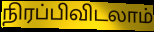
நிரப்பிவிடலாம்